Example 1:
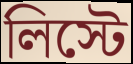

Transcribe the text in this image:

লিস্টে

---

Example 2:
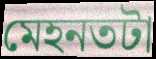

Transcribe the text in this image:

মেহনতটা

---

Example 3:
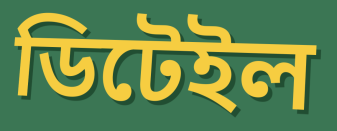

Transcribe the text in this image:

ডিটেইল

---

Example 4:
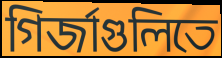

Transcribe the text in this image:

গির্জাগুলিতে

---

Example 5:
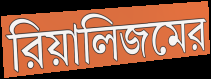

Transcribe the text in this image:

রিয়ালিজমের